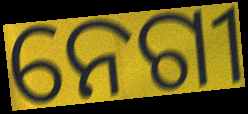
ନେଗୀ